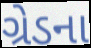
ગ્રેડના